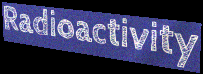
Radioactivity